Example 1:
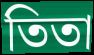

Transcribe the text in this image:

তিতা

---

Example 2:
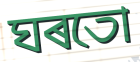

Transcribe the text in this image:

ঘৰতো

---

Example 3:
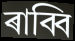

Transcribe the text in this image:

ৰাব্বি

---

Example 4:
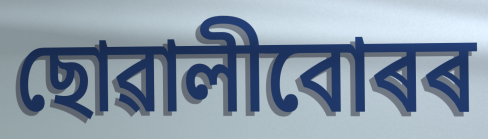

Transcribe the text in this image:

ছোৱালীবোৰৰ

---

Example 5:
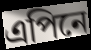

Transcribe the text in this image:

এপিনে